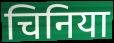
चिनिया